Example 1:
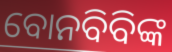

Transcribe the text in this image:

ବୋନବିବିଙ୍କ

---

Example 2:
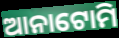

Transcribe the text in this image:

ଆନାଟୋମି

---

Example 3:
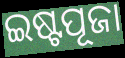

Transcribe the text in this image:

ଇଷ୍ଟପୂଜା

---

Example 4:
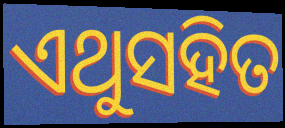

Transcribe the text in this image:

ଏଥୁସହିତ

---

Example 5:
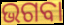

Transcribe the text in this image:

ଭଗବା